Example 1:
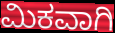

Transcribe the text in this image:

ಮಿಕವಾಗಿ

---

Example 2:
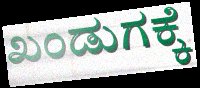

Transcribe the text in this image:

ಖಂಡುಗಕ್ಕೆ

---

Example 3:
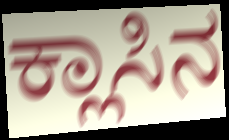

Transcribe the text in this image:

ಕ್ಲಾಸಿನ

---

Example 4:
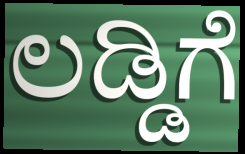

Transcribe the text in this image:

ಲಡ್ಡಿಗೆ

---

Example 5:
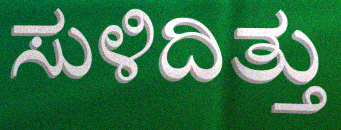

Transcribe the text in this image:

ಸುಳಿದಿತ್ತು